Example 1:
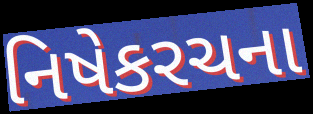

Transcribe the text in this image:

નિષેકરચના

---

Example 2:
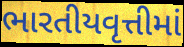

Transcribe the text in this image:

ભારતીયવૃત્તીમાં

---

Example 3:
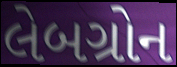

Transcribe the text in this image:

લેબગ્રોન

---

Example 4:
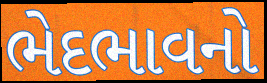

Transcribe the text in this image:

ભેદભાવનો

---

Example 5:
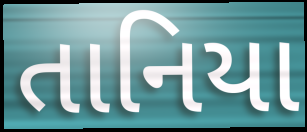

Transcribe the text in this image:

તાનિયા